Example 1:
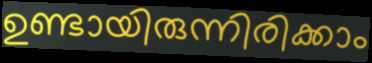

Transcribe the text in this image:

ഉണ്ടായിരുന്നിരിക്കാം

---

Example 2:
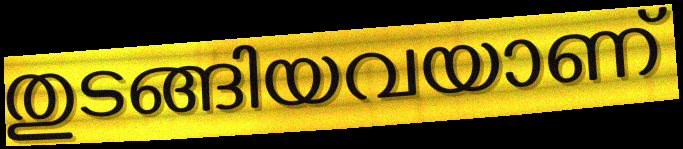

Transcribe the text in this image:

തുടങ്ങിയവയാണ്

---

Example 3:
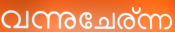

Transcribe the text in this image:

വന്നുചേര്ന്ന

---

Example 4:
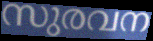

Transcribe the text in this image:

സുരവന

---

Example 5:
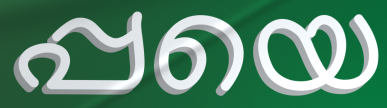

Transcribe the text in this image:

പ്പയെ